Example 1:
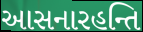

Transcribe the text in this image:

આસનારહન્તિ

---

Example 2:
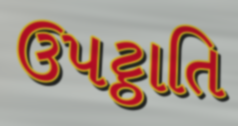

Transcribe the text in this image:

ઉપટ્ઠાતિ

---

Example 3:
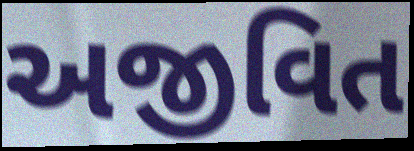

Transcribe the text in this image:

અજીવિત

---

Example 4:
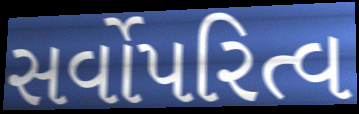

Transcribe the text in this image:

સર્વોપરિત્વ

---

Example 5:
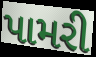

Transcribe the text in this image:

પામરી